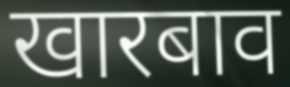
खारबाव